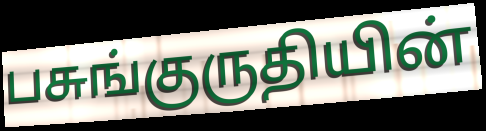
பசுங்குருதியின்